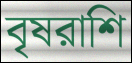
বৃষরাশি